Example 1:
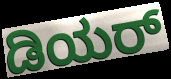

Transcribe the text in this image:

ಡಿಯರ್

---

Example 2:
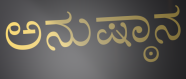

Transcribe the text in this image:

ಅನುಷ್ಠಾನ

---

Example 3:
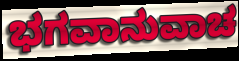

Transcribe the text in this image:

ಭಗವಾನುವಾಚ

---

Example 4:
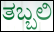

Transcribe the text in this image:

ತಬ್ಬಲಿ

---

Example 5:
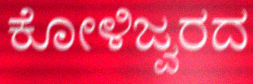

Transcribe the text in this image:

ಕೋಳಿಜ್ವರದ